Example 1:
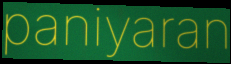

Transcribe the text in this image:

paniyaran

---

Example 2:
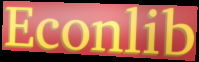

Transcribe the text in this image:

Econlib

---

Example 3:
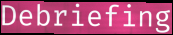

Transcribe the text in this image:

Debriefing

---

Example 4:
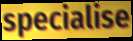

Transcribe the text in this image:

specialise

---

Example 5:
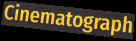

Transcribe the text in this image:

Cinematograph